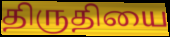
திருதியை